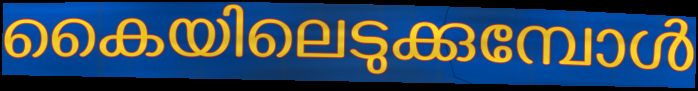
കൈയിലെടുക്കുമ്പോൾ